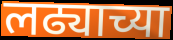
लढ्याच्या